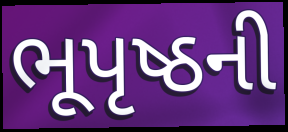
ભૂપૃષ્ઠની